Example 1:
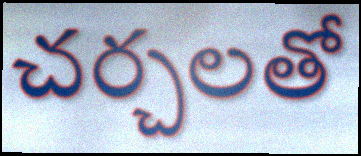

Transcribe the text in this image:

చర్చలతో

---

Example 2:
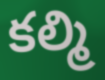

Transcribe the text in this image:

కల్మి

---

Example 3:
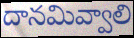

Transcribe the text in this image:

దానమివ్వాలి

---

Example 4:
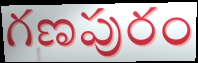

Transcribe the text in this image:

గణపురం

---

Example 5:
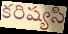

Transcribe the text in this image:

కరిష్యసి